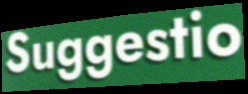
Suggestio